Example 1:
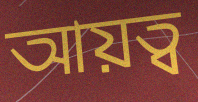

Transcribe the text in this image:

আয়ত্ব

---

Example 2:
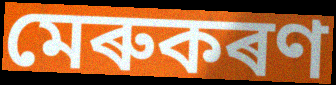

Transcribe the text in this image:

মেৰুকৰণ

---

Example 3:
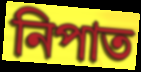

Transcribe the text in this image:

নিপাত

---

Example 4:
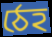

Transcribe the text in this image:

ঠেহ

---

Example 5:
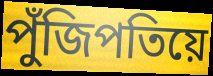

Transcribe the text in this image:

পুঁজিপতিয়ে